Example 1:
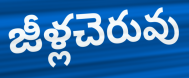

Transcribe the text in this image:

జీళ్లచెరువు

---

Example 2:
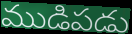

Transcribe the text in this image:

ముడిపడు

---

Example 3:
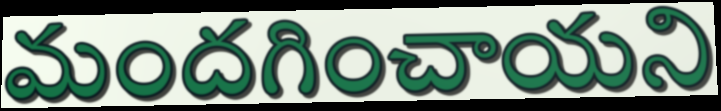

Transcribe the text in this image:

మందగించాయని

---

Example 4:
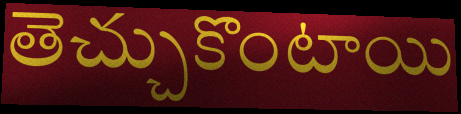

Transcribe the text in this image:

తెచ్చుకొంటాయి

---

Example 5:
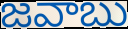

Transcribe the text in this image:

జవాబు